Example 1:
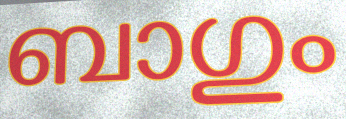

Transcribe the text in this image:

ബാഗും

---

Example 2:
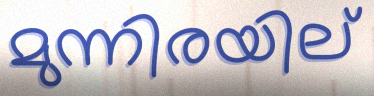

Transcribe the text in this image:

മുന്നിരയില്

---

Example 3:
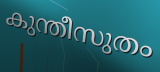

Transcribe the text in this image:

കുന്തീസുതം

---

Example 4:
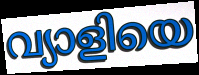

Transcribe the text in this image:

വ്യാളിയെ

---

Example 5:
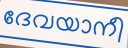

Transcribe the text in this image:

ദേവയാനീ